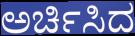
ಅರ್ಚಿಸಿದ